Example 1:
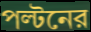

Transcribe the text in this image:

পল্টনের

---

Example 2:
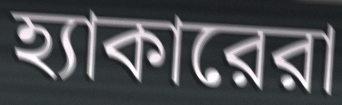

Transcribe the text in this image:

হ্যাকারেরা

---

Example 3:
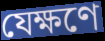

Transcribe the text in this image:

যেক্ষণে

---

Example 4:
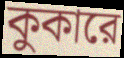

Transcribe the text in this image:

কুকারে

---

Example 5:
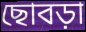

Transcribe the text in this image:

ছোবড়া